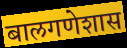
बालगणेशास